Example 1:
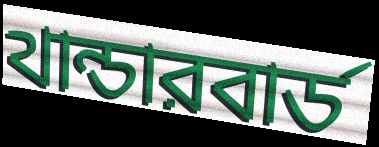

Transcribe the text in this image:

থান্ডারবার্ড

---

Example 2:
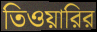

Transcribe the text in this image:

তিওয়ারির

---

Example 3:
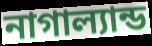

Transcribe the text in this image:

নাগাল্যান্ড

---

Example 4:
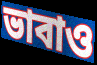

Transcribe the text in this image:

ভাবাও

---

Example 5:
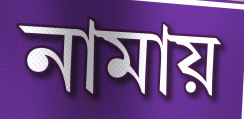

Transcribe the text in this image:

নামায়